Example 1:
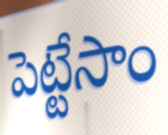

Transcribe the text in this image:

పెట్టేసాం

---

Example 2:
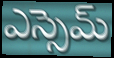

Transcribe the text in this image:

ఎస్సెమ్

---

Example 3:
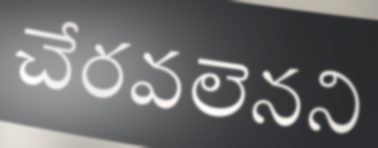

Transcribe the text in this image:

చేరవలెనని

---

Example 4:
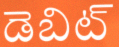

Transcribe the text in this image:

డెబిట్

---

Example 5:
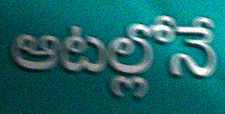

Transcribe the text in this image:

ఆటల్లోనే